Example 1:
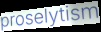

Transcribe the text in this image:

proselytism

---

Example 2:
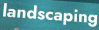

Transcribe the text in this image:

landscaping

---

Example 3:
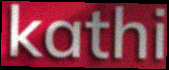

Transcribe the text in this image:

kathi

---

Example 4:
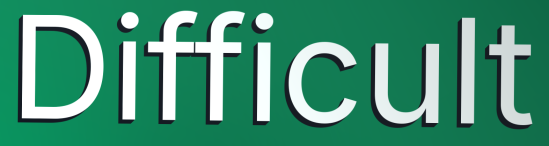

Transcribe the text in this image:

Difficult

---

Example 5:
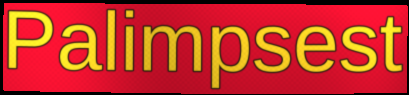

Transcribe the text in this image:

Palimpsest